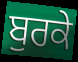
ਬੁਰਕੇ